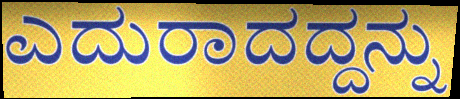
ಎದುರಾದದ್ದನ್ನು